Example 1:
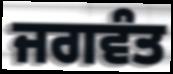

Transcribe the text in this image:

ਜਗਵੰਤ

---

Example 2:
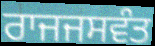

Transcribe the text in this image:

ਰਾਜਜਸਵੰਤ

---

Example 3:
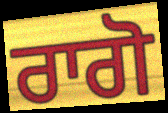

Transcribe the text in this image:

ਰਾਗੋ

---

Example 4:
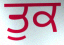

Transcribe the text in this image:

ਤੁਕ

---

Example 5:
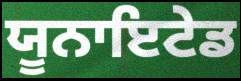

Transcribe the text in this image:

ਯੂਨਾਇਟੇਡ